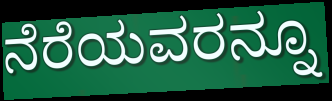
ನೆರೆಯವರನ್ನೂ